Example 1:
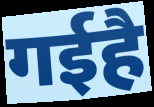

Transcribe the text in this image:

गईहै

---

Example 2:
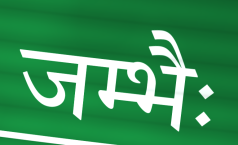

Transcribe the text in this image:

जम्भैः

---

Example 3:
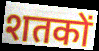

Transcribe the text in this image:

शतकों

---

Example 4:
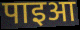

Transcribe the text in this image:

पाइआ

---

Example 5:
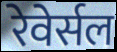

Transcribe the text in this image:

रेवेर्सल